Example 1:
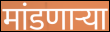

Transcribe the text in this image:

मांडणार्‍या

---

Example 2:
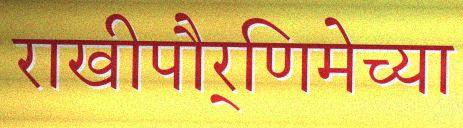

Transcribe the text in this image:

राखीपौर्णिमेच्या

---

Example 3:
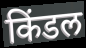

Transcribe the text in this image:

किंडल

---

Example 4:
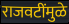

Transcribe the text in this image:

राजवटींमुळे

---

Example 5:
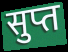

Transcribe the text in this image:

सुप्त